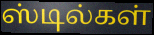
ஸ்டில்கள்